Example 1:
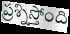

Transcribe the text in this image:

ప్రశ్నిస్తోంది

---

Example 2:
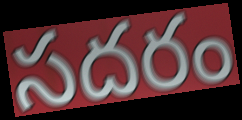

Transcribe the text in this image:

సదరం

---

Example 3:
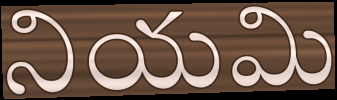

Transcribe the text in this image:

నియమి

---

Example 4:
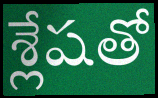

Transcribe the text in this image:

శ్లేషతో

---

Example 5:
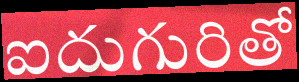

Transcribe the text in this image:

ఐదుగురితో